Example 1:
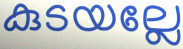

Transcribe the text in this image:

കുടയല്ലേ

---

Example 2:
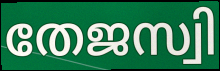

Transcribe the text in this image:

തേജസ്വി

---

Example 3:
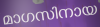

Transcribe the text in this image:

മാഗസിനായ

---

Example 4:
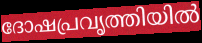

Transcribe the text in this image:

ദോഷപ്രവൃത്തിയിൽ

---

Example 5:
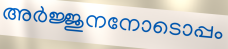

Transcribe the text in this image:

അർജ്ജുനനോടൊപ്പം